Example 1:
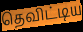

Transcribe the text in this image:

தெவிட்டிய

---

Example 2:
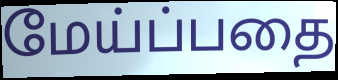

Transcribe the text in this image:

மேய்ப்பதை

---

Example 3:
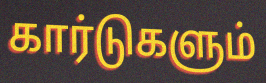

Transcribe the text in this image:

கார்டுகளும்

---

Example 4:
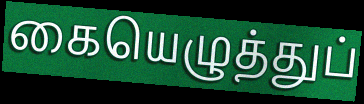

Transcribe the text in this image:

கையெழுத்துப்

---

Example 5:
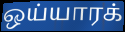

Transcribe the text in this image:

ஒய்யாரக்